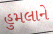
હુમલાને